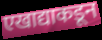
एखाद्याकडून